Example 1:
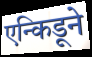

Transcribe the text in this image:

एन्किडूने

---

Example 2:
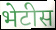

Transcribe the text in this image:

भेटीस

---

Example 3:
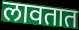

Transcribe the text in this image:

लावतात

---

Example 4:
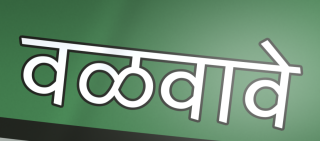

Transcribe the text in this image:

वळवावे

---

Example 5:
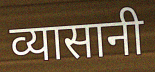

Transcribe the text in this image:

व्यासानी